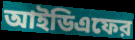
আইডিএফের